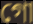
গো